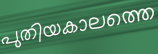
പുതിയകാലത്തെ